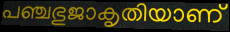
പഞ്ചഭുജാകൃതിയാണ്